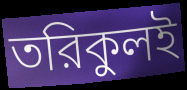
তরিকুলই